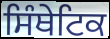
ਸਿੰਥੇਟਿਕ